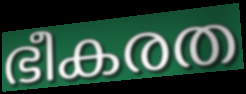
ഭീകരത